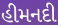
હીમનદી